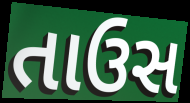
તાઉસ